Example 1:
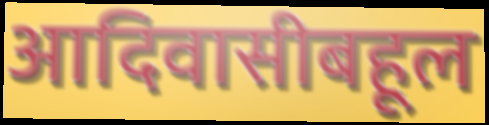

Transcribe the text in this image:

आदिवासीबहूल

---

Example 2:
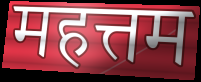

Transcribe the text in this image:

महत्तम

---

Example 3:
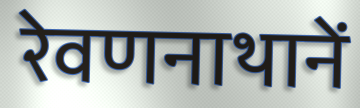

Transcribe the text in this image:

रेवणनाथानें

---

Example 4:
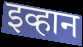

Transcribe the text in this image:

इव्हान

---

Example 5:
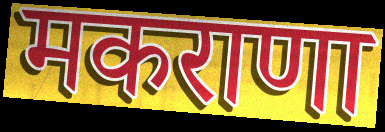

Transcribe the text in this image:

मकराणा